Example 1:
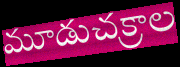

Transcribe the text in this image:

మూడుచక్రాల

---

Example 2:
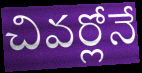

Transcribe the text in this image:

చివర్లోనే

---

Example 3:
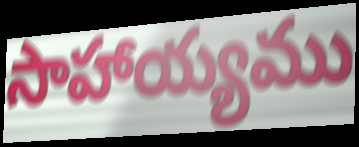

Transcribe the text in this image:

సాహాయ్యము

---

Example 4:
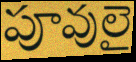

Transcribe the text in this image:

పూవులై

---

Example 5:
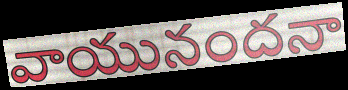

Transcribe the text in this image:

వాయునందనా